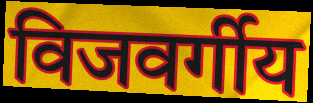
विजवर्गीय